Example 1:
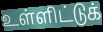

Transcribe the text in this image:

உள்ளிட்டுக்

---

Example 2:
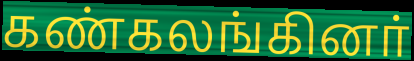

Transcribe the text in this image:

கண்கலங்கினர்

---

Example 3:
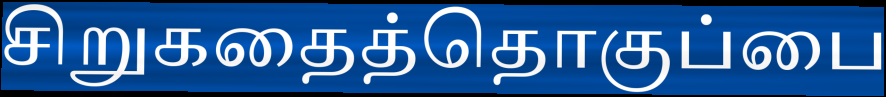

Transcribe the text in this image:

சிறுகதைத்தொகுப்பை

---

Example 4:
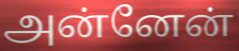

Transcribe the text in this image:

அன்னேன்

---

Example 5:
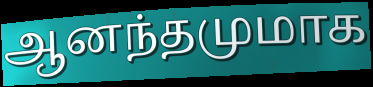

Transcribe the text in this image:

ஆனந்தமுமாக